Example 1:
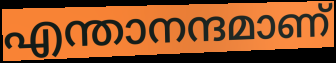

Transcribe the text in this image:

എന്താനന്ദമാണ്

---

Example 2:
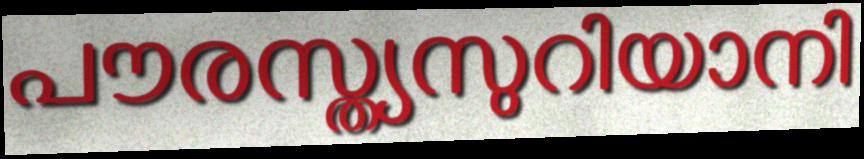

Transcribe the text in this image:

പൗരസ്ത്യസുറിയാനി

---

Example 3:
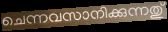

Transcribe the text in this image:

ചെന്നവസാനിക്കുന്നതു്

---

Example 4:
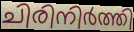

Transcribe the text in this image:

ചിരിനിർത്തി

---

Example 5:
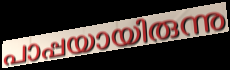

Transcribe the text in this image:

പാപ്പയായിരുന്നു